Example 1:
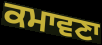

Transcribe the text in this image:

ਕਮਾਵਣਾ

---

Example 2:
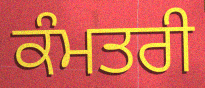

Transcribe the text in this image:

ਕੰਮਤਰੀ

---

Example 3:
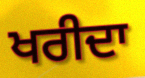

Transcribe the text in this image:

ਖਰੀਦਾ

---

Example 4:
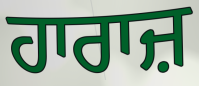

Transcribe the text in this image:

ਹਾਰਾਜ਼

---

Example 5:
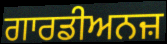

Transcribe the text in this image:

ਗਾਰਡੀਅਨਜ਼